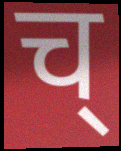
च्